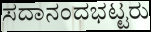
ಸದಾನಂದಭಟ್ಟರು